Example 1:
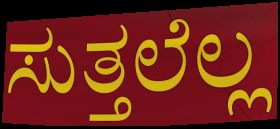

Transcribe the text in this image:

ಸುತ್ತಲೆಲ್ಲ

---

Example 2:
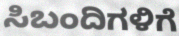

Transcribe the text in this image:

ಸಿಬಂದಿಗಳಿಗೆ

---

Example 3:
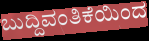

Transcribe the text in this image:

ಬುದ್ದಿವಂತಿಕೆಯಿಂದ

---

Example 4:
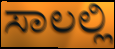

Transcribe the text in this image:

ಸಾಲಲ್ಲಿ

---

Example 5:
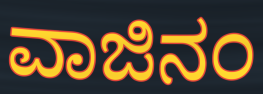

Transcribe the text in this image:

ವಾಜಿನಂ